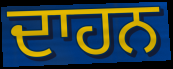
ਦਾਹਨ